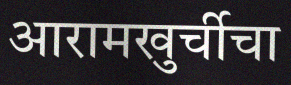
आरामखुर्चीचा